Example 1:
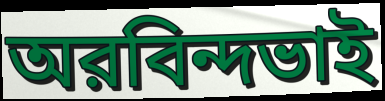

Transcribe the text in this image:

অরবিন্দভাই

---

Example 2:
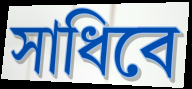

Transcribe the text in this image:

সাধিবে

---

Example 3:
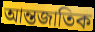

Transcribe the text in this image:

আন্তজাতিক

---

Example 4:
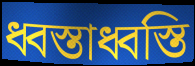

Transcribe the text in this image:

ধ্বস্তাধ্বস্তি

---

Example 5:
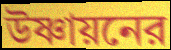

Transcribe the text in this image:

উষ্ণায়নের